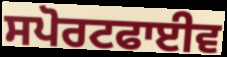
ਸਪੋਰਟਫਾਈਵ